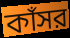
কাঁসর